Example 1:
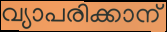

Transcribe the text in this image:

വ്യാപരിക്കാന്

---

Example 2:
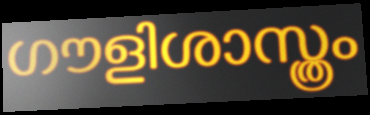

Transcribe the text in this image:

ഗൗളിശാസ്ത്രം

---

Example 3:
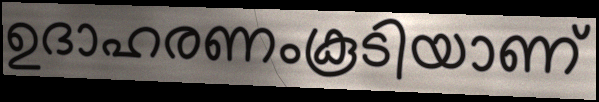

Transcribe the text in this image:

ഉദാഹരണംകൂടിയാണ്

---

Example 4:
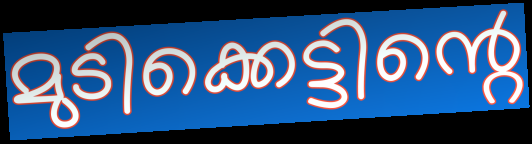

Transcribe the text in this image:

മുടിക്കെട്ടിന്റെ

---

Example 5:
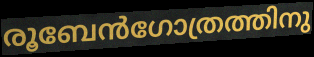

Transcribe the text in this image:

രൂബേൻഗോത്രത്തിനു